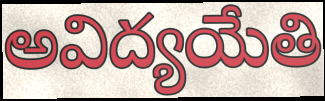
అవిద్యయేతి